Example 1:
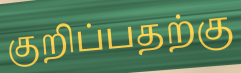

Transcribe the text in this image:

குறிப்பதற்கு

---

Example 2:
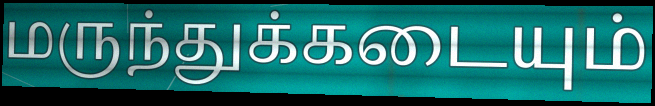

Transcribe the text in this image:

மருந்துக்கடையும்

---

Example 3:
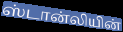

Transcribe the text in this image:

ஸ்டான்லியின்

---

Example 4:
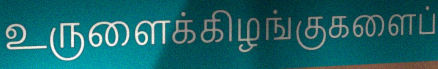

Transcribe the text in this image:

உருளைக்கிழங்குகளைப்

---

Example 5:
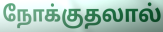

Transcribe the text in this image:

நோக்குதலால்